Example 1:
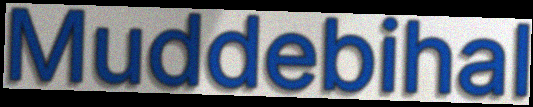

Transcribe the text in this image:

Muddebihal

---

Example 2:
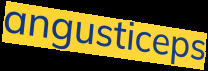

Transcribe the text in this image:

angusticeps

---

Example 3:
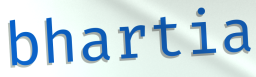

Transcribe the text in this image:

bhartia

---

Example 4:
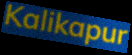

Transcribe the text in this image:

Kalikapur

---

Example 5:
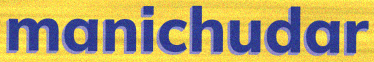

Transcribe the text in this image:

manichudar